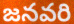
జనవరి